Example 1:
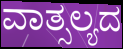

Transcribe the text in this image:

ವಾತ್ಸಲ್ಯದ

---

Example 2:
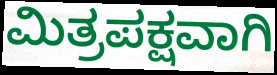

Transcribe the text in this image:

ಮಿತ್ರಪಕ್ಷವಾಗಿ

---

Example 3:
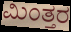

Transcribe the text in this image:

ಮಿಂತ್ತರ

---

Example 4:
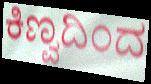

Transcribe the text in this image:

ಕಿಣ್ವದಿಂದ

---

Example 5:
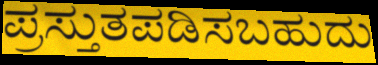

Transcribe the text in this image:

ಪ್ರಸ್ತುತಪಡಿಸಬಹುದು